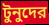
টুনুদের